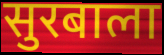
सुरबाला